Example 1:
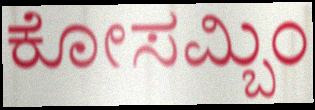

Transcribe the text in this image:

ಕೋಸಮ್ಬಿಂ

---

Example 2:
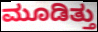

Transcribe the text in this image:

ಮೂಡಿತ್ತು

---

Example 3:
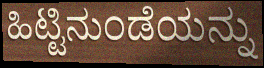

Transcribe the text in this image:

ಹಿಟ್ಟಿನುಂಡೆಯನ್ನು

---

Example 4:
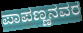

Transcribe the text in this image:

ಪಾಪಣ್ಣನವರ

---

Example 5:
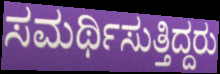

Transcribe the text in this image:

ಸಮರ್ಥಿಸುತ್ತಿದ್ದರು